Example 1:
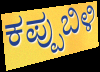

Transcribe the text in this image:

ಕಪ್ಪುಬಿಳಿ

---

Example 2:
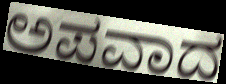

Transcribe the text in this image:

ಅಪವಾದ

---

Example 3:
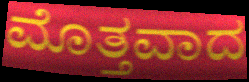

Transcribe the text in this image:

ಮೊತ್ತವಾದ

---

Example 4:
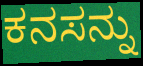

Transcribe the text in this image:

ಕನಸನ್ನು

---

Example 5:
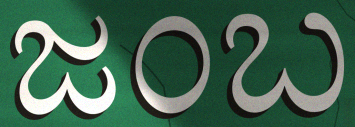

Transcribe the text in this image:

ಜಂಬ